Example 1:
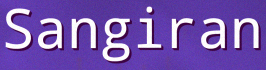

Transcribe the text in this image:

Sangiran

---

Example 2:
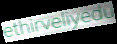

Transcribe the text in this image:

ethirveliyedu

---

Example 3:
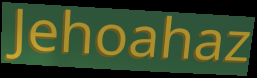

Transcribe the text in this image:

Jehoahaz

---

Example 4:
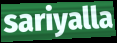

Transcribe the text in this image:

sariyalla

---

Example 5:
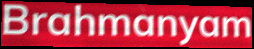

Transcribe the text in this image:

Brahmanyam